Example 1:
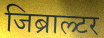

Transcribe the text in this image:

जिब्राल्टर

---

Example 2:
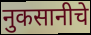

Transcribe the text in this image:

नुकसानीचे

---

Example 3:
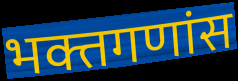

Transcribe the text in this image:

भक्तगणांस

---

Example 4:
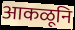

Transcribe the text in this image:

आकळूनि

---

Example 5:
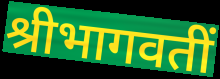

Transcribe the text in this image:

श्रीभागवतीं